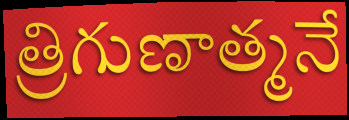
త్రిగుణాత్మనే